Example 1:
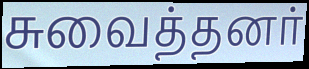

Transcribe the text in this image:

சுவைத்தனர்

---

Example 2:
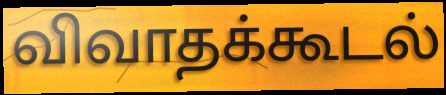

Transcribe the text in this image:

விவாதக்கூடல்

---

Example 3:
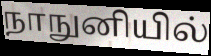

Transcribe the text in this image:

நாநுனியில்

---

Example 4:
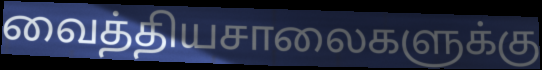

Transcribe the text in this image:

வைத்தியசாலைகளுக்கு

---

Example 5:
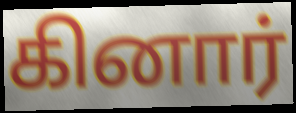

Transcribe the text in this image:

கினார்